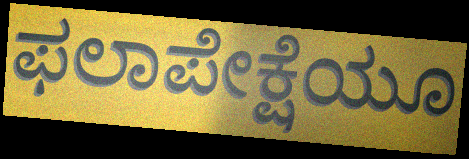
ಫಲಾಪೇಕ್ಷೆಯೂ